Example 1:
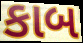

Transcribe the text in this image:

કાબ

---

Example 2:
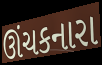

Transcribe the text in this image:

ઊંચકનારા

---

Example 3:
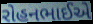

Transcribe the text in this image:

રોહનભાઈએ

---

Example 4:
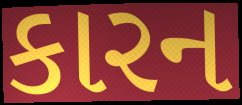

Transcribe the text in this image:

કારન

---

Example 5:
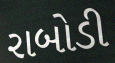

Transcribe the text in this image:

રાબોડી